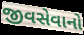
જીવસેવાનો